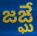
జఙ్ఘే